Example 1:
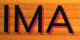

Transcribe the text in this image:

IMA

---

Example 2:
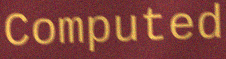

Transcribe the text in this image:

Computed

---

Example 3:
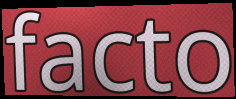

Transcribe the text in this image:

facto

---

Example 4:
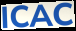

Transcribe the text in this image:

ICAC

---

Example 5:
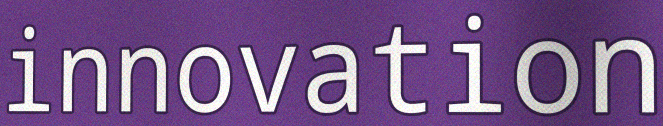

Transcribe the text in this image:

innovation